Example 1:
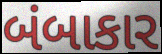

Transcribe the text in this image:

બંબાકાર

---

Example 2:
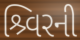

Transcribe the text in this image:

શ્ર્વિરની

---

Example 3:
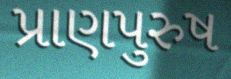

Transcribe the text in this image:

પ્રાણપુરુષ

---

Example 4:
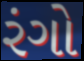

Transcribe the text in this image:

રંગો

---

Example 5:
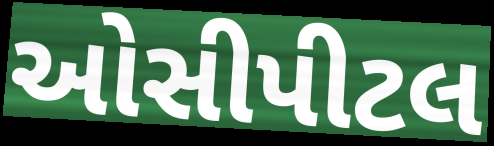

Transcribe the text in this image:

ઓસીપીટલ